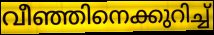
വീഞ്ഞിനെക്കുറിച്ച്